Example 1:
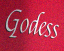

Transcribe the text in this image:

Godess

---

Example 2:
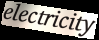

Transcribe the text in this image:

electricity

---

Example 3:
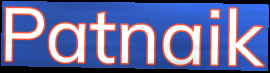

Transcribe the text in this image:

Patnaik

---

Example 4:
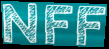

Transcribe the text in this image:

NFF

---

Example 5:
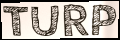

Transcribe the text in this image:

TURP